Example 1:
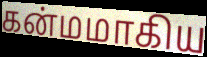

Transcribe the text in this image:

கன்மமாகிய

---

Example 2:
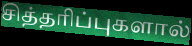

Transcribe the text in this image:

சித்தரிப்புகளால்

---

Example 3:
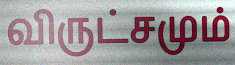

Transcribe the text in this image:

விருட்சமும்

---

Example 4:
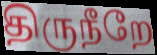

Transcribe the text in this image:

திருநீறே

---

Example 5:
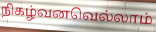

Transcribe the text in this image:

நிகழ்வனவெல்லாம்